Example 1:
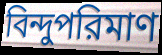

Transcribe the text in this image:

বিন্দুপরিমাণ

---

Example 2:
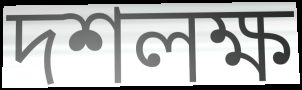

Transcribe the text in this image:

দশলক্ষ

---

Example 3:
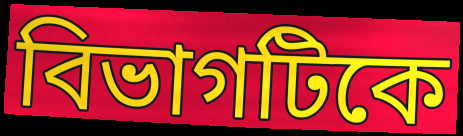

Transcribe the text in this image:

বিভাগটিকে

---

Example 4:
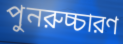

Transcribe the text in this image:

পুনরুচ্চারণ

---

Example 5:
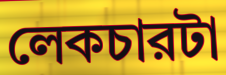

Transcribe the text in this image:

লেকচারটা